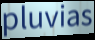
pluvias